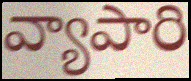
వ్యాపారి